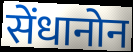
सेंधानोन